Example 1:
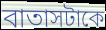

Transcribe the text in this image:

বাতাসটাকে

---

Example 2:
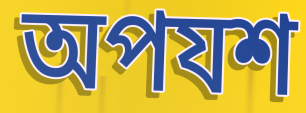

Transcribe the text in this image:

অপযশ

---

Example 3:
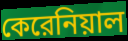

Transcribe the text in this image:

কেরেনিয়াল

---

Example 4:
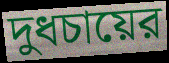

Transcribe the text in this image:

দুধচায়ের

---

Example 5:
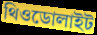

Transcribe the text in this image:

থিওডোলাইট